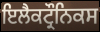
ਇਲੈਕਟ੍ਰੌਨਿਕਸ